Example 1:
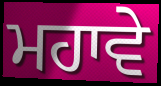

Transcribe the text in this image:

ਮਹਾਵੇ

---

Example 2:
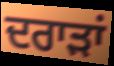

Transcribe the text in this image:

ਦਰਾੜਾਂ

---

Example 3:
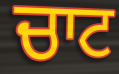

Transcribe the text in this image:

ਚਾਟ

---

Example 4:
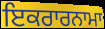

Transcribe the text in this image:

ਇਕਰਾਰਨਾਮਾ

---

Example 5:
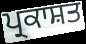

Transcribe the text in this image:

ਪ੍ਰਕਾਸ਼ਤ